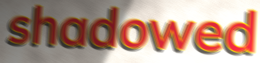
shadowed